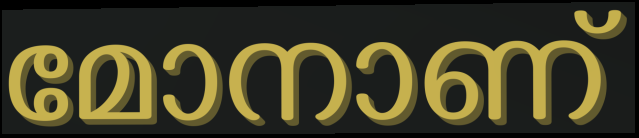
മോനാണ്